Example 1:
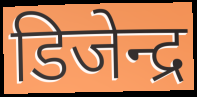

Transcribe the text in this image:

डिजेन्द्र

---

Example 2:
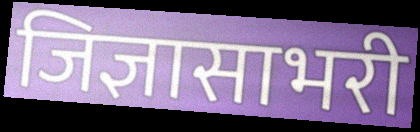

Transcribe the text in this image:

जिज्ञासाभरी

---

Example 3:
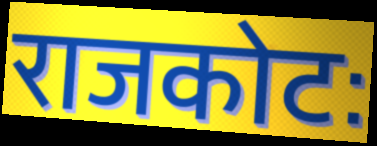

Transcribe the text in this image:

राजकोटः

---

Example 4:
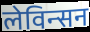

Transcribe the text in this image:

लेविन्सन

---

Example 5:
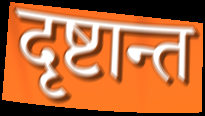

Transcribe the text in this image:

दृष्टान्त